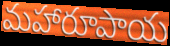
మహారూపాయ